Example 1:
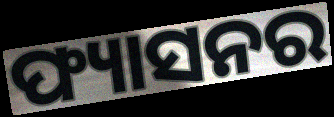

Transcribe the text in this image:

ଫ୍ୟାସନର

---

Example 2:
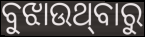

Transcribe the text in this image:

ବୁଝାଉଥ୍‌ବାରୁ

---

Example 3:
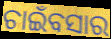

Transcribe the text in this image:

ଚାଇଁବସାର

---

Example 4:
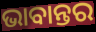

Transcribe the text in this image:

ଭାବାନ୍ତର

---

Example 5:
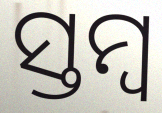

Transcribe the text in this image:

ସ୍ତମ୍ଵ